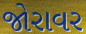
જોરાવર